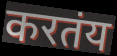
करतंय